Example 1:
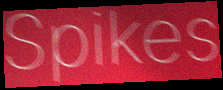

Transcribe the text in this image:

Spikes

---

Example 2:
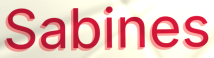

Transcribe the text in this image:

Sabines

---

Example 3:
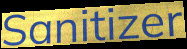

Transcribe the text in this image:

Sanitizer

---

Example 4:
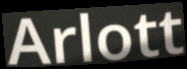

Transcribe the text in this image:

Arlott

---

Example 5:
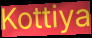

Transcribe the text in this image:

Kottiya